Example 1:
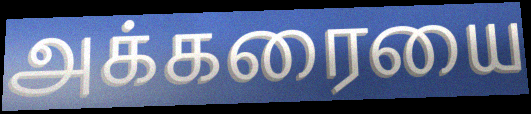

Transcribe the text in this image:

அக்கரையை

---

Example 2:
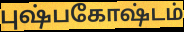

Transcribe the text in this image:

புஷ்பகோஷ்டம்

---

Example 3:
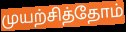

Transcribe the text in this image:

முயற்சித்தோம்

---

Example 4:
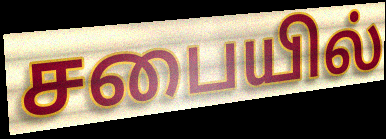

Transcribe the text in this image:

சபையில்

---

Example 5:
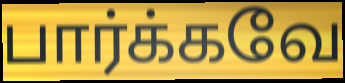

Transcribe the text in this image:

பார்க்கவே